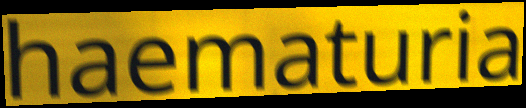
haematuria